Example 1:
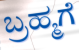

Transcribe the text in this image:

ಬ್ರಹ್ಮಗೆ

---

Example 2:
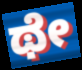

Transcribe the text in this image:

ಥೇ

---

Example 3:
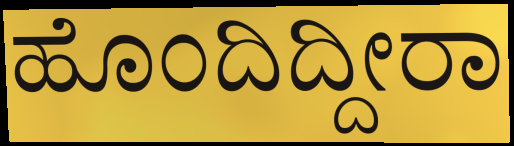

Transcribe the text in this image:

ಹೊಂದಿದ್ದೀರಾ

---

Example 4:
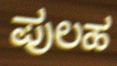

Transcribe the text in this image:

ಪುಲಹ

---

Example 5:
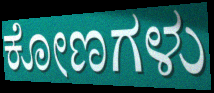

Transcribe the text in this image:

ಕೋಣಗಳು